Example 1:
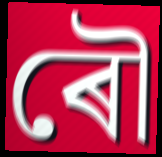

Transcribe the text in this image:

ৰৌ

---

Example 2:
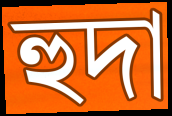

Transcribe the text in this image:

হুদা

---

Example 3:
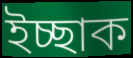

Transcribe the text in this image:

ইচ্ছাক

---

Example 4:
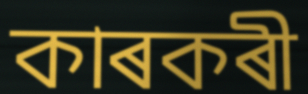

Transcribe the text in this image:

কাৰকৰী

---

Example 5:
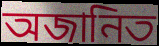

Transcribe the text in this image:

অজানিত